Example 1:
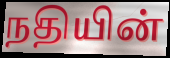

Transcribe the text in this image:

நதியின்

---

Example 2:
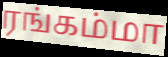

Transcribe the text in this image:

ரங்கம்மா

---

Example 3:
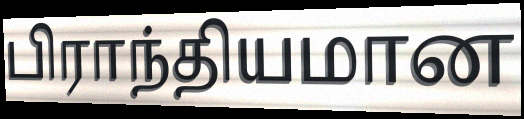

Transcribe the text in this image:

பிராந்தியமான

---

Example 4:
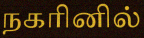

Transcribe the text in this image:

நகரினில்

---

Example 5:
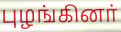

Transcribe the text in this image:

புழங்கினர்